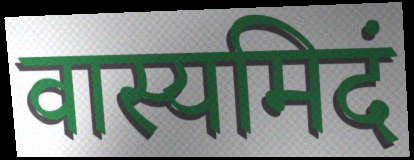
वास्यमिदं